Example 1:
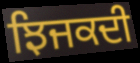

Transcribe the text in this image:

ਝਿਜਕਦੀ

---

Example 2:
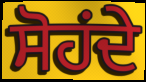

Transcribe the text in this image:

ਸੋਹਂਦੇ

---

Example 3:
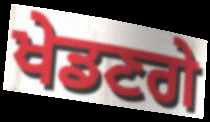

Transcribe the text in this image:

ਖੇਡਣਗੇ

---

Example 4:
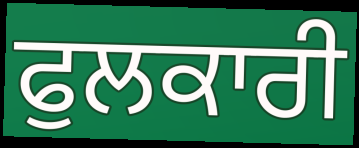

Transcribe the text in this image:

ਫੁਲਕਾਰੀ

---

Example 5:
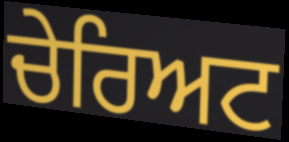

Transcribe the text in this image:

ਚੇਰਿਅਟ